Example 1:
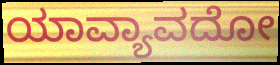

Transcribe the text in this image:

ಯಾವ್ಯಾವದೋ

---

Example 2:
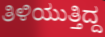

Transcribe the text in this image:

ತಿಳಿಯುತ್ತಿದ್ದ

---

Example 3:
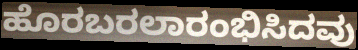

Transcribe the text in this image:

ಹೊರಬರಲಾರಂಭಿಸಿದವು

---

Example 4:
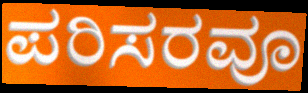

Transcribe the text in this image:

ಪರಿಸರವೂ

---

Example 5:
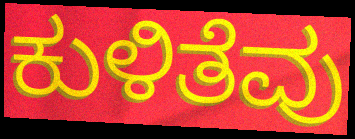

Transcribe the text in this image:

ಕುಳಿತೆವು